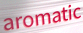
aromatic